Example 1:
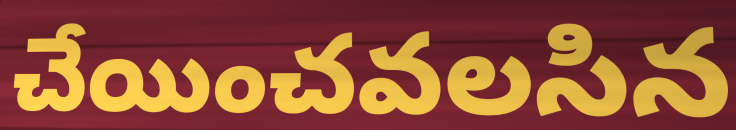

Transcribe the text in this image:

చేయించవలసిన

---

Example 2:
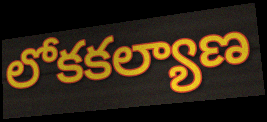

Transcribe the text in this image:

లోకకల్యాణ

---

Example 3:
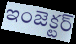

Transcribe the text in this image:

ఇంజెక్టర్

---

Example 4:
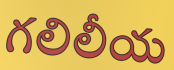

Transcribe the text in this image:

గలిలీయ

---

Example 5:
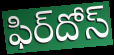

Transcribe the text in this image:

ఫిర్‌దోస్